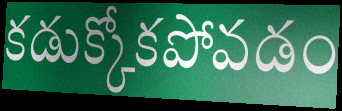
కడుక్కోకపోవడం